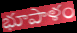
భూపాళం